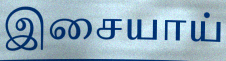
இசையாய்